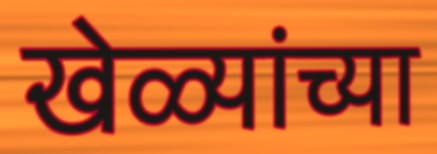
खेळ्यांच्या